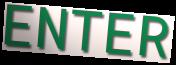
ENTER